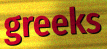
greeks